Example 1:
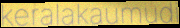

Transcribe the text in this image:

keralakaumudi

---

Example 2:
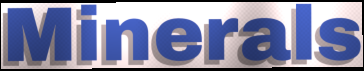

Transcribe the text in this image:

Minerals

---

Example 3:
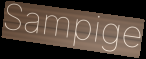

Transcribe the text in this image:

Sampige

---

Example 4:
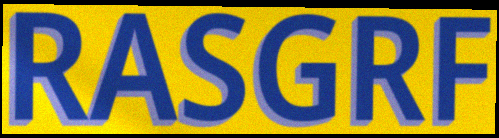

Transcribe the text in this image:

RASGRF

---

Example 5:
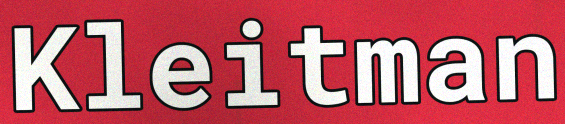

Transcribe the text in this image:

Kleitman